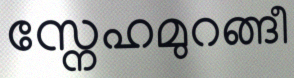
സ്നേഹമുറങ്ങീ